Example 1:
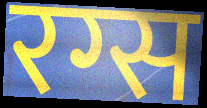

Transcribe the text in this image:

रग्स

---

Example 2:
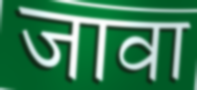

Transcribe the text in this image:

जावा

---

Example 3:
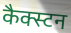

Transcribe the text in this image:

कैक्स्टन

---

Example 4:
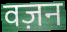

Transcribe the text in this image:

वज़न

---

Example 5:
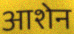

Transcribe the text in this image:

आशेन